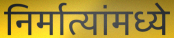
निर्मात्यांमध्ये